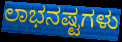
ಲಾಭನಷ್ಟಗಳು